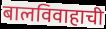
बालविवाहाची